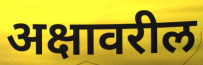
अक्षावरील